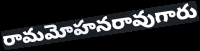
రామమోహనరావుగారు